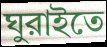
ঘুরাইতে